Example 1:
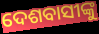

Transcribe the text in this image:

ଦେଶବାସୀଙ୍କୁ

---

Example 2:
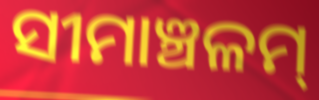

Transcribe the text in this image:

ସୀମାଞ୍ଚଳମ୍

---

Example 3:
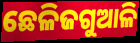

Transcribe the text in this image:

ଛେଳିଜଗୁଆଳି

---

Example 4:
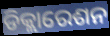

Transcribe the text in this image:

ଡିକ୍ଲାରେଶନ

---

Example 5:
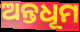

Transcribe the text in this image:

ଅନ୍ତଧୂମ